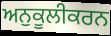
ਅਨੁਕੂਲੀਕਰਨ